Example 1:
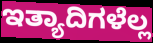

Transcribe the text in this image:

ಇತ್ಯಾದಿಗಳೆಲ್ಲ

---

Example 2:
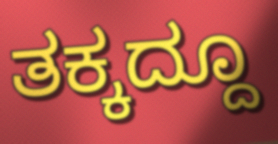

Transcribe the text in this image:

ತಕ್ಕದ್ದೂ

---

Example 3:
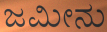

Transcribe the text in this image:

ಜಮೀನು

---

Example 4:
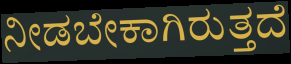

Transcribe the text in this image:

ನೀಡಬೇಕಾಗಿರುತ್ತದೆ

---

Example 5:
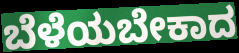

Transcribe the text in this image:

ಬೆಳೆಯಬೇಕಾದ